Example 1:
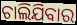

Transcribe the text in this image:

ଚାଲିଯିବାର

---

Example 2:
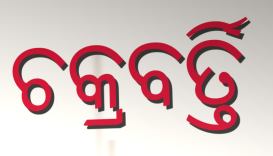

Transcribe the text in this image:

ଚକ୍ରବର୍ତ୍ତି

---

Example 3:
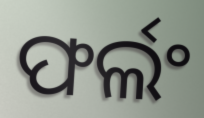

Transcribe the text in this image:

ଫର୍ଲଂ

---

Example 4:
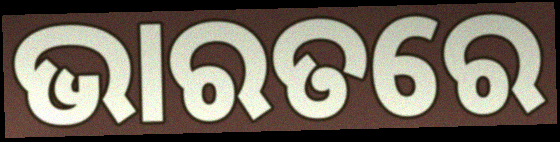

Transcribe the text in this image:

ଭାରତରେ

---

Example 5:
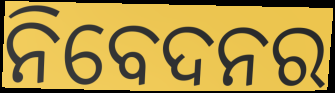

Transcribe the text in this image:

ନିବେଦନର